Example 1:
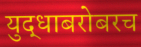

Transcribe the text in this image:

युद्धाबरोबरच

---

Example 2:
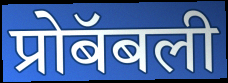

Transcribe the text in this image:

प्रोबॅबली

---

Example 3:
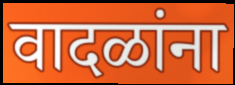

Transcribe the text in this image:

वादळांना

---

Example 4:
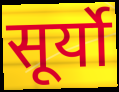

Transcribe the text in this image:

सूर्यो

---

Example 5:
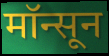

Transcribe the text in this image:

मॉन्सून